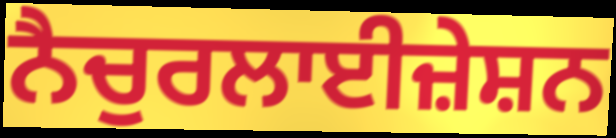
ਨੈਚੁਰਲਾਈਜ਼ੇਸ਼ਨ